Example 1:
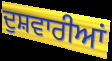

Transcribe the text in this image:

ਦੁਸ਼ਵਾਰੀਆਂ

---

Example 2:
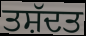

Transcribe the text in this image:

ਤਸ਼ੱਦਤ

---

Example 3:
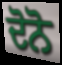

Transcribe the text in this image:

ਦੋਨੋ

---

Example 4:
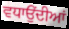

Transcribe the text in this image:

ਵਧਾਉਂਦੀਆਂ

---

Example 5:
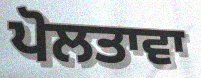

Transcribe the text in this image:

ਪੋਲਤਾਵਾ